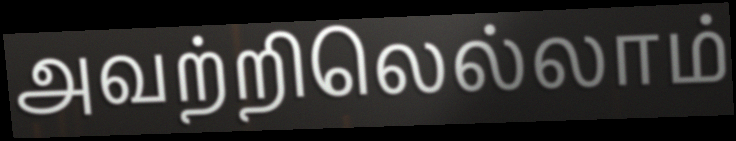
அவற்றிலெல்லாம்